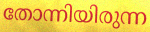
തോന്നിയിരുന്ന